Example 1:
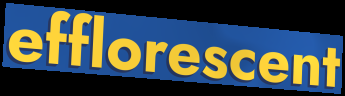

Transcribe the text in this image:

efflorescent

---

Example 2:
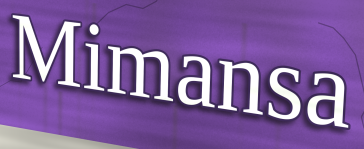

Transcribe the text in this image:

Mimansa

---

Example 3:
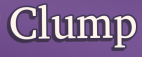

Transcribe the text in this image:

Clump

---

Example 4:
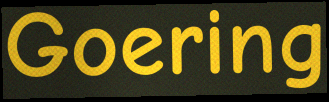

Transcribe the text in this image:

Goering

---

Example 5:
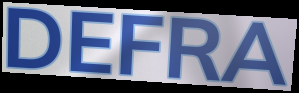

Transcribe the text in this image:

DEFRA